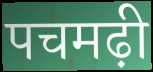
पचमढ़ी